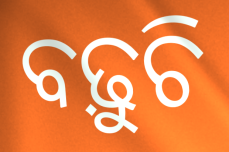
ବଢ଼ୁଚି